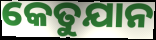
କେତୁଯାନ